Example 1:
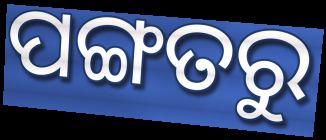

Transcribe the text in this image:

ପଙ୍ଗତରୁ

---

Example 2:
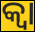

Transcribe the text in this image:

କ୍ଵା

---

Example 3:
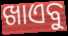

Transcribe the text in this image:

ଖାଏବୁ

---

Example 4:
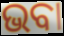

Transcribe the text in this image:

ଭବା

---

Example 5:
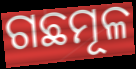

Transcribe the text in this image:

ଗଛମୂଳ